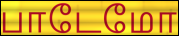
பாடேமோ